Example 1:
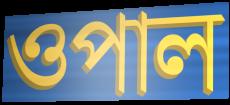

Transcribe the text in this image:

ওপাল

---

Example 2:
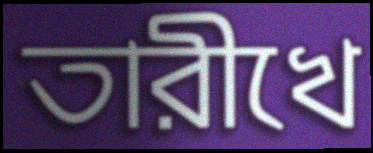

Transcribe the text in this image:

তারীখে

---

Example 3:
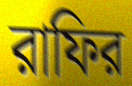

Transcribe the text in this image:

রাফির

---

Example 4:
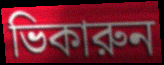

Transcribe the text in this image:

ভিকারুন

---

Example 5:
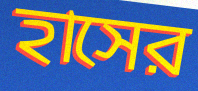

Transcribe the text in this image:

হাসের